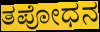
ತಪೋಧನ